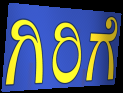
ಗಿರಿಗೆ